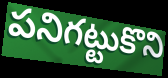
పనిగట్టుకొని